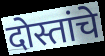
दोस्तांचे